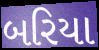
બરિયા